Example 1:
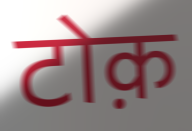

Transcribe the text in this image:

टोक़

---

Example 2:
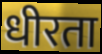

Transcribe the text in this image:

धीरता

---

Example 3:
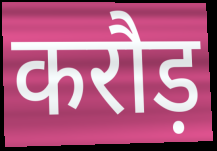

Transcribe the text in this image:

करौड़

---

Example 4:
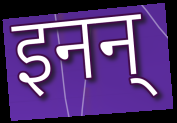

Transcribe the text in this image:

इनन्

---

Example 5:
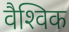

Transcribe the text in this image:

वैश्‍विक